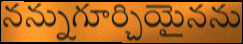
నన్నుగూర్చియైనను